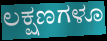
ಲಕ್ಷಣಗಳೂ